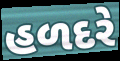
હળદરે